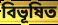
বিভূষিত